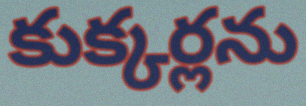
కుక్కర్లను